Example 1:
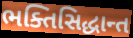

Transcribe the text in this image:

ભક્તિસિદ્ધાન્ત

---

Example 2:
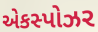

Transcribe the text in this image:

એકસ્પોઝર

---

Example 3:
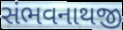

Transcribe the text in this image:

સંભવનાથજી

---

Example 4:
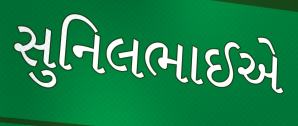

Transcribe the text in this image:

સુનિલભાઈએ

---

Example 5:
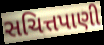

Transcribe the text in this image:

સચિત્તપાણી